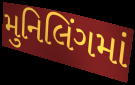
મુનિલિંગમાં